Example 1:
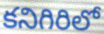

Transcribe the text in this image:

కనిగిరిలో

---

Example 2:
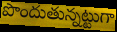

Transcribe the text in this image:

పొందుతున్నట్టుగా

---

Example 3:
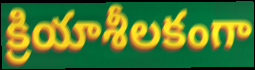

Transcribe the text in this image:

క్రియాశీలకంగా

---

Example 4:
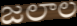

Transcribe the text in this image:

జలాల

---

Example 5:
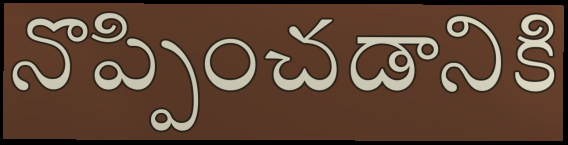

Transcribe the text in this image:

నొప్పించడానికి